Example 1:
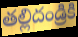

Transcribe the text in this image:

తల్లిదండ్రికి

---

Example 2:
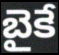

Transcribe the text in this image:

బైకే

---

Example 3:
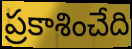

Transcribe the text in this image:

ప్రకాశించేది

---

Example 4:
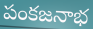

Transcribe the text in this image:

పంకజనాభ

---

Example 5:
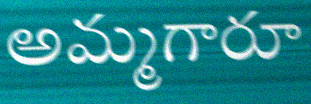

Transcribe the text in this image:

అమ్మగారూ